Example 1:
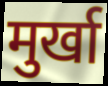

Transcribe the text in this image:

मुर्खा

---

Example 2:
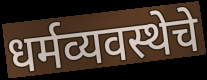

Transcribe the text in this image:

धर्मव्यवस्थेचे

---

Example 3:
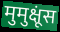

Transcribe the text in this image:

मुमुक्षूंस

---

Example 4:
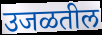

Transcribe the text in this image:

उजळतील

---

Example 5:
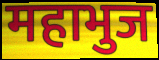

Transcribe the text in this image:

महाभुज